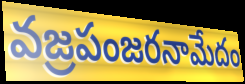
వజ్రపంజరనామేదం